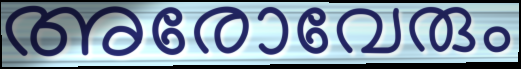
അരോവേരും